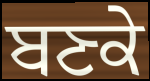
ਬਣਕੇ